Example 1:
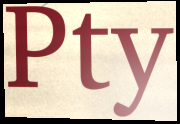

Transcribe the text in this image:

Pty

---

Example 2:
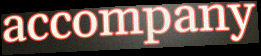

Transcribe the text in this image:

accompany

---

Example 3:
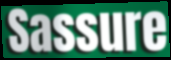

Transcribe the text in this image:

Sassure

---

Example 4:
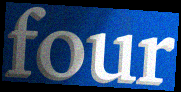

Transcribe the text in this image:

four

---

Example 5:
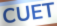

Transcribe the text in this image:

CUET